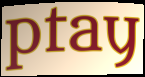
ptay